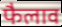
फैलाव